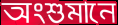
অংশুমানে